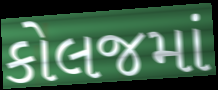
કોલજમાં